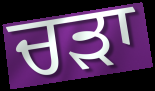
ਚੜਾ